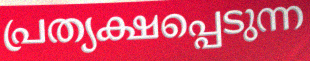
പ്രത്യക്ഷപ്പെടുന്ന